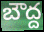
బౌద్ద